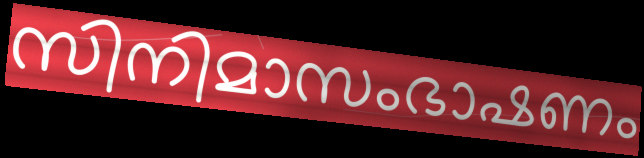
സിനിമാസംഭാഷണം